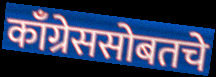
काँग्रेससोबतचे